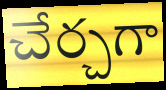
చేర్చగా